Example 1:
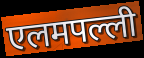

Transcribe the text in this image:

एलमपल्ली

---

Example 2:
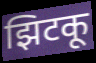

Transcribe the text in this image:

झिटकू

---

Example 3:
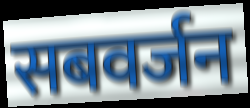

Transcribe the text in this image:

सबवर्जन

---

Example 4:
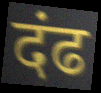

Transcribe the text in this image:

दंढ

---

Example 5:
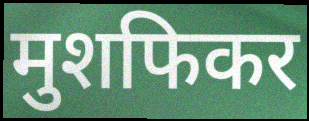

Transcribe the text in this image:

मुशफिकर